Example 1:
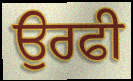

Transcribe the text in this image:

ਉਰਫੀ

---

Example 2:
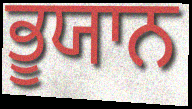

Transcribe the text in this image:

ਭੂਯਾਨ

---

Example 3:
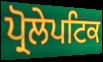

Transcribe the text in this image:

ਪ੍ਰੋਲੇਪਟਿਕ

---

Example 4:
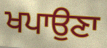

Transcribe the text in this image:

ਖਪਾਉਣਾ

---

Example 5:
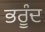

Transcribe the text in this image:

ਭਰੂੰਦ